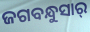
ଜଗବନ୍ଧୁସାର୍